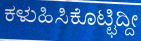
ಕಳುಹಿಸಿಕೊಟ್ಟಿದ್ದೀ